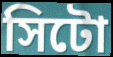
সিটো